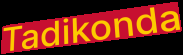
Tadikonda